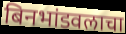
बिनभांडवलाचा